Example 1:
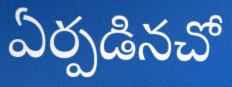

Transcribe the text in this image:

ఏర్పడినచో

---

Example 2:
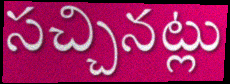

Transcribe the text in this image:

సచ్చినట్లు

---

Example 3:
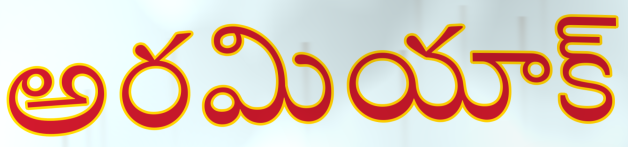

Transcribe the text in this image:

అరమియాక్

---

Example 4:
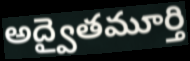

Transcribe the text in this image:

అద్వైతమూర్తి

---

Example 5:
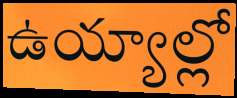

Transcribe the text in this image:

ఉయ్యాల్లో